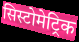
सिस्टोमेट्रिक